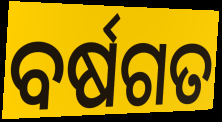
ବର୍ଷଗତ